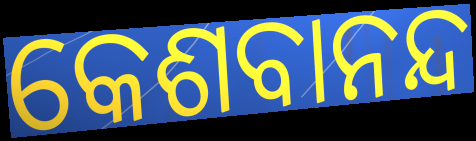
କେଶବାନନ୍ଦ